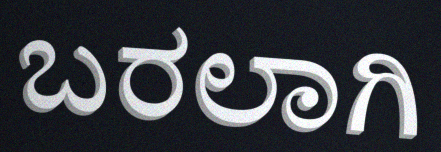
ಬರಲಾಗಿ